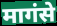
मागंसे